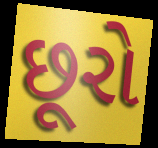
છૂરો